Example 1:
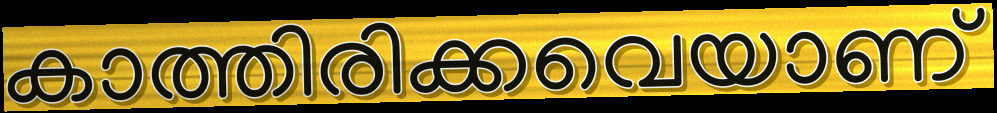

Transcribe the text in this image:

കാത്തിരിക്കവെയാണ്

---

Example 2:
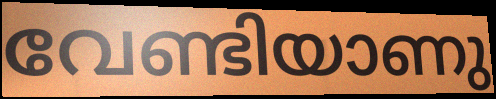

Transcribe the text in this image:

വേണ്ടിയാണു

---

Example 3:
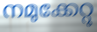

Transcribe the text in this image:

നമുക്കേറ്റു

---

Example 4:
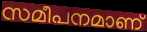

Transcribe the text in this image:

സമീപനമാണ്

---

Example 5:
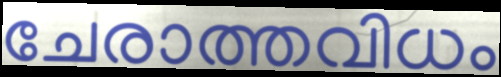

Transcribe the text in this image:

ചേരാത്തവിധം